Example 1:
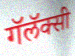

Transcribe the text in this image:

गॅलॅक्सी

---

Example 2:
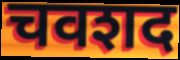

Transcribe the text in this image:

चवशद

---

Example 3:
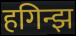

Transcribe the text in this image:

हगिन्झ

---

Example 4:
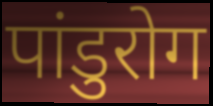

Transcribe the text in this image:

पांडुरोग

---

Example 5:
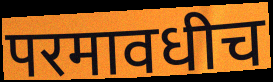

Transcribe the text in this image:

परमावधीच